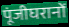
पूंजीघरानों